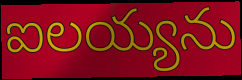
ఐలయ్యను